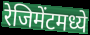
रेजिमेंटमध्ये